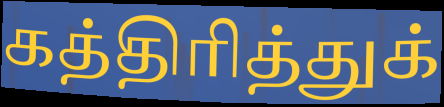
கத்திரித்துக்